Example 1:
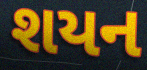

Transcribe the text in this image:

શયન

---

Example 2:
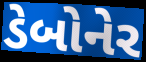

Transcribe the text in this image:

ડેબોનેર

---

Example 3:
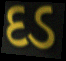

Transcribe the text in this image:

દડ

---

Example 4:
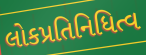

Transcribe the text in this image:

લોકપ્રતિનિધિત્વ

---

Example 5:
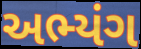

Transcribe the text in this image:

અભ્યંગ